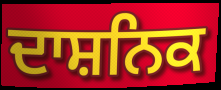
ਦਾਸ਼ਨਿਕ